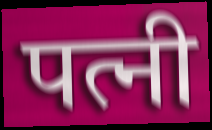
पत्‍नी